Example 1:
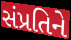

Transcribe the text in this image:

સંપ્રતિને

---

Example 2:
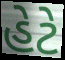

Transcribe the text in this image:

હેટે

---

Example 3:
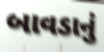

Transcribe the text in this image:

બાવડાનું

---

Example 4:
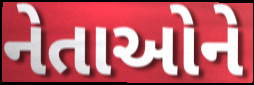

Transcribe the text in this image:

નેતાઓને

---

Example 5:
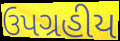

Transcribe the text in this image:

ઉપગ્રહીય